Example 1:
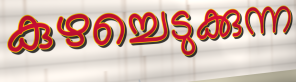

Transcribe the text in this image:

കുഴച്ചെടുക്കുന്ന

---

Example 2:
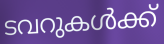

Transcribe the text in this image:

ടവറുകൾക്ക്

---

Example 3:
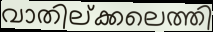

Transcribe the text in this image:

വാതില്ക്കലെത്തി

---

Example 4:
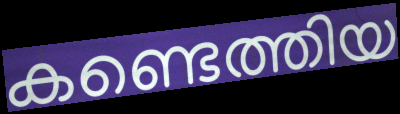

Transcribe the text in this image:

കണ്ടെത്തിയ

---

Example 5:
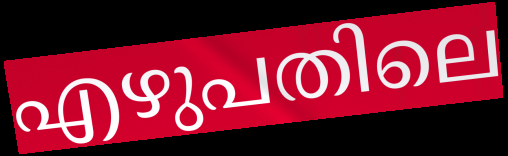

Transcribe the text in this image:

എഴുപതിലെ